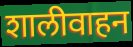
शालीवाहन